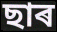
ছাৰ